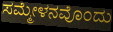
ಸಮ್ಮೇಳನವೊಂದು